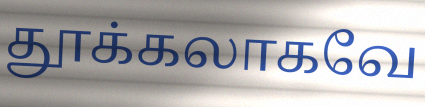
தூக்கலாகவே